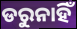
ଡରୁନାହିଁ